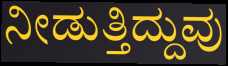
ನೀಡುತ್ತಿದ್ದುವು